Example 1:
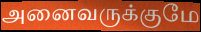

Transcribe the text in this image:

அனைவருக்குமே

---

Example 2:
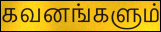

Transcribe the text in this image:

கவனங்களும்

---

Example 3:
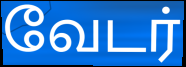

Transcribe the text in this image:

வேடர்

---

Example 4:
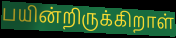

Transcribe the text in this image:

பயின்றிருக்கிறாள்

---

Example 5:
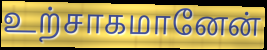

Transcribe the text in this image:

உற்சாகமானேன்